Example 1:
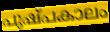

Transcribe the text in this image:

പുഷ്പകാലം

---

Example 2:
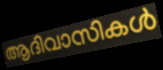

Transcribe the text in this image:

ആദിവാസികൾ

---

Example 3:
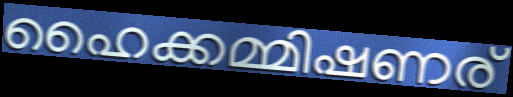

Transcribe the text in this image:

ഹൈക്കമ്മിഷണര്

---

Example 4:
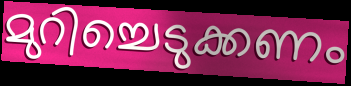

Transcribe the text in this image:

മുറിച്ചെടുക്കണം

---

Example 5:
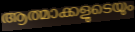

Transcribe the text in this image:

ആത്മാക്കളുടെയും